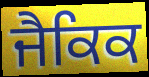
ਜੈਕਿਕ